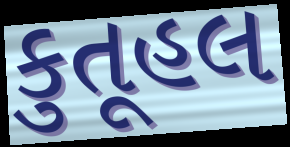
કુતૂહલ